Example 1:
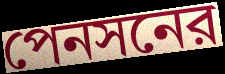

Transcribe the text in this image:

পেনসনের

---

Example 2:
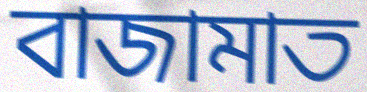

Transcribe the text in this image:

বাজামাত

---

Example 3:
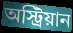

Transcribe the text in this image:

অস্ট্রিয়ান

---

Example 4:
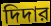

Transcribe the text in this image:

দিদার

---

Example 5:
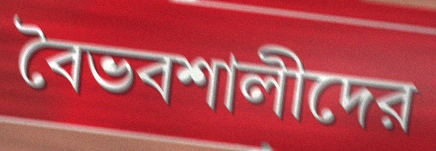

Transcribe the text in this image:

বৈভবশালীদের